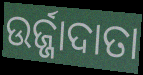
ଉର୍ଜ୍ଜାଦାତା